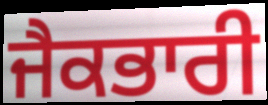
ਜੈਕਭਾਰੀ